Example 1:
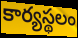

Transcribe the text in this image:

కార్యస్థలం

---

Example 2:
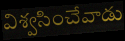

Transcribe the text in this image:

విశ్వసించేవాడు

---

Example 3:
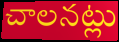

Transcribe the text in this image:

చాలనట్లు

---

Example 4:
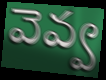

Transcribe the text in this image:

వెవ్వ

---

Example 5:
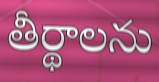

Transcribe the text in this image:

తీర్థాలను